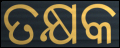
ତକ୍ଷକ